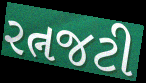
રત્નજટી